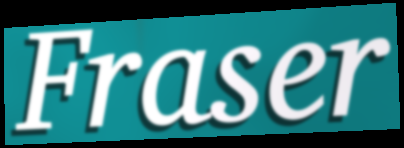
Fraser